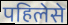
पहिलेसे